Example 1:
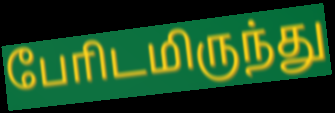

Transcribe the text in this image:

பேரிடமிருந்து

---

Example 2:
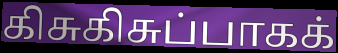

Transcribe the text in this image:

கிசுகிசுப்பாகக்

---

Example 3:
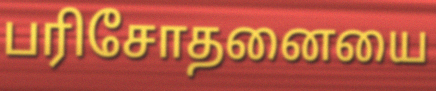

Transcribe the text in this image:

பரிசோதனையை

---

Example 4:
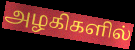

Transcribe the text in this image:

அழகிகளில்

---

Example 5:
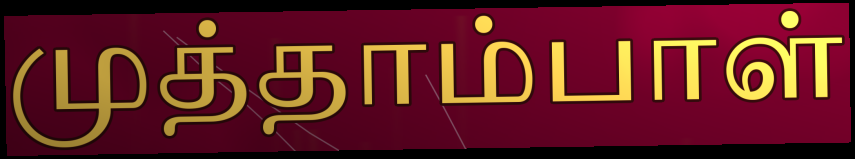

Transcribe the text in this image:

முத்தாம்பாள்